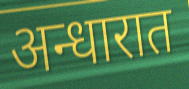
अन्धारात